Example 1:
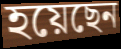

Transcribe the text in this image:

হয়েছেন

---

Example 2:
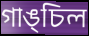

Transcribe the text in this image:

গাঙ্‌চিল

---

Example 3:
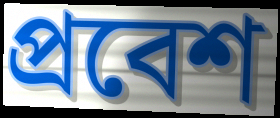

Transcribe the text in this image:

প্রবেশ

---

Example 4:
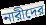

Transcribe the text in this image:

নারীদের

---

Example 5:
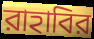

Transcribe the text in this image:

রাহাবির